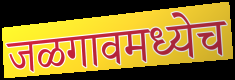
जळगावमध्येच